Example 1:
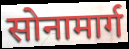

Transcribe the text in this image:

सोनामार्ग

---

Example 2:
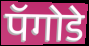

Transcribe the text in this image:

पॅगोडे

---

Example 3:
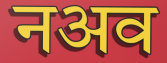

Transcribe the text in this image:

नअव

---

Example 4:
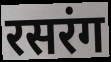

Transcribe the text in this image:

रसरंग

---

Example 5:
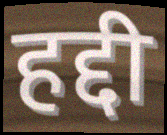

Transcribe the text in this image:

हद्दी